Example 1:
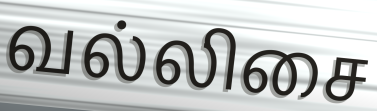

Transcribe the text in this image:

வல்லிசை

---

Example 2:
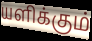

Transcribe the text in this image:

யளிக்கும்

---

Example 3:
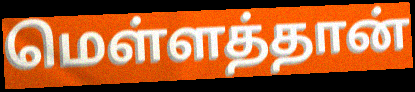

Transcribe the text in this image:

மெள்ளத்தான்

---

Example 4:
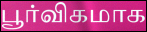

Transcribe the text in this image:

பூர்விகமாக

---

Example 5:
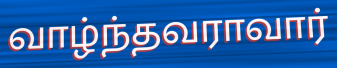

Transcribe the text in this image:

வாழ்ந்தவராவார்